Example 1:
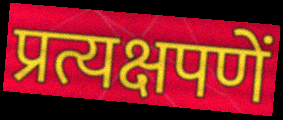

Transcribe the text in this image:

प्रत्यक्षपणें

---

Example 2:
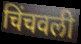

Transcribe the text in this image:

चिंचवली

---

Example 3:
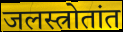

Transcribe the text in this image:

जलस्त्रोतांत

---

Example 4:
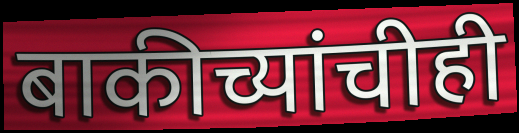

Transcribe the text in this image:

बाकीच्यांचीही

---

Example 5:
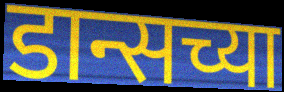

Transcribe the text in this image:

डान्सच्या